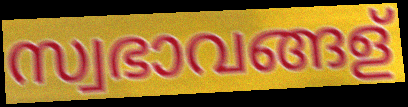
സ്വഭാവങ്ങള്